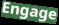
Engage